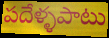
పదేళ్ళపాటు